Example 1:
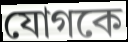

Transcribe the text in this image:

যোগকে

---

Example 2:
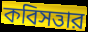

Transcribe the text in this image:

কবিসত্তার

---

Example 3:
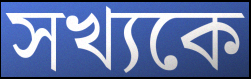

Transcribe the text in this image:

সখ্যকে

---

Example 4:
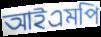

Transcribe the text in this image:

আইএমপি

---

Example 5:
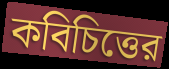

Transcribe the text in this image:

কবিচিত্তের